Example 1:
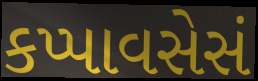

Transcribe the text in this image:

કપ્પાવસેસં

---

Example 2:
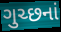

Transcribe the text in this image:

ગુચ્છનાં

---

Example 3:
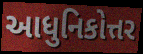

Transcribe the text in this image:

આધુનિકોત્તર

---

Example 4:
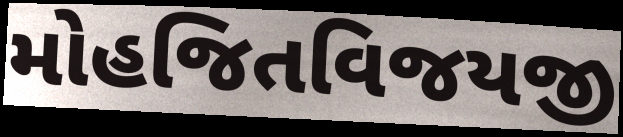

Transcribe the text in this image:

મોહજિતવિજયજી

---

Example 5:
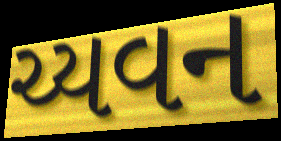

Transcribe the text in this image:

ચ્યવન